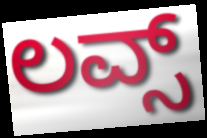
ಲವ್ಸ್